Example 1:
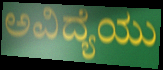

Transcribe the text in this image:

ಅವಿದ್ಯೆಯು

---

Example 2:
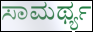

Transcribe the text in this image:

ಸಾಮರ್ಥ್ಯ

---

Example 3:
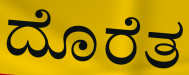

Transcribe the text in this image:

ದೊರೆತ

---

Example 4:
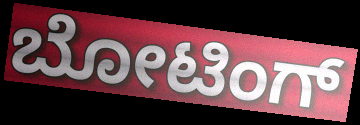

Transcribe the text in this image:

ಬೋಟಿಂಗ್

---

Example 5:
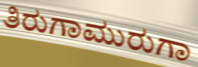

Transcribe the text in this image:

ತಿರುಗಾಮುರುಗಾ